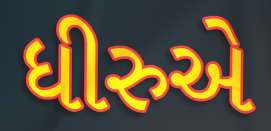
ધીરુએ